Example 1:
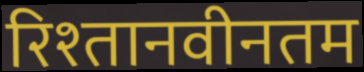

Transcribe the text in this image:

रिश्तानवीनतम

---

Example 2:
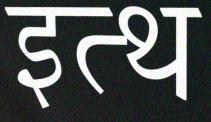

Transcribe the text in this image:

इत्थ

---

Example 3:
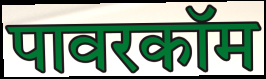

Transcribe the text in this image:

पावरकॉम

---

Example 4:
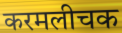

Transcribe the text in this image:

करमलीचक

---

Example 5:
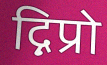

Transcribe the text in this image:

द्निप्रो